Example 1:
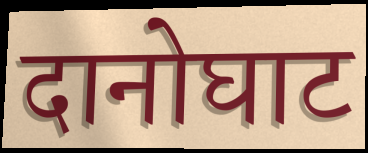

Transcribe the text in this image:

दानोघाट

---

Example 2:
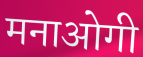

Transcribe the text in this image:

मनाओगी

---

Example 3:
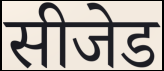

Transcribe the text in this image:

सीजेड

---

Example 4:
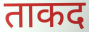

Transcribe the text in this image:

ताकद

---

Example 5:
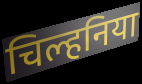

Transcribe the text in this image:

चिल्हनिया